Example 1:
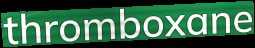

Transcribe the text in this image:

thromboxane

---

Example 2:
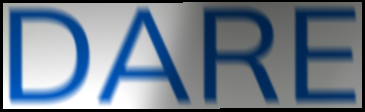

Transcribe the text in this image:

DARE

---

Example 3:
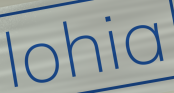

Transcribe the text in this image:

lohia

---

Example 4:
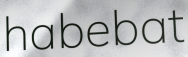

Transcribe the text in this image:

habebat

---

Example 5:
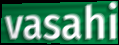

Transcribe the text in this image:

vasahi